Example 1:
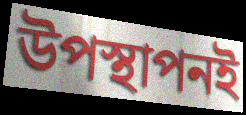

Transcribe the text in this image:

উপস্থাপনই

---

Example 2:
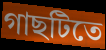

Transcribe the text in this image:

গাছটিতে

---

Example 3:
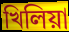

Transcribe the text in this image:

খিলিয়া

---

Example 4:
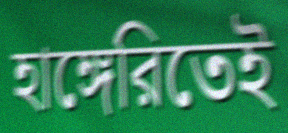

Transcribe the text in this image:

হাঙ্গেরিতেই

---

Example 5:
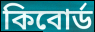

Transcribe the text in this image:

কিবোর্ড